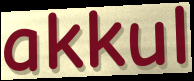
akkul